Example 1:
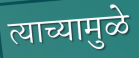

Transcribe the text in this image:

त्याच्यामुळे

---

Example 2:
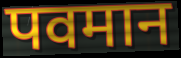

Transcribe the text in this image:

पवमान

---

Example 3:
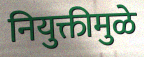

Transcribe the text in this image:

नियुक्तीमुळे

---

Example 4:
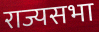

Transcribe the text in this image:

राज्यसभा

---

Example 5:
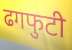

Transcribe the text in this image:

ढगफुटी